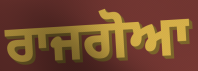
ਰਾਜਗੋਆ